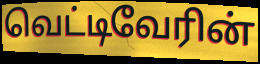
வெட்டிவேரின்